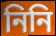
নিনি